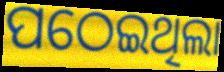
ପଠେଇଥିଲା